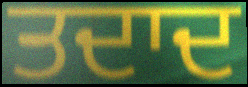
ਤਦਾਦ